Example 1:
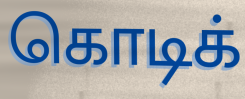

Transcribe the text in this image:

கொடிக்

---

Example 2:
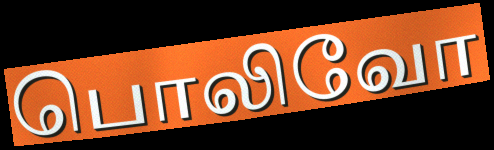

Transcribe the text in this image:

பொலிவோ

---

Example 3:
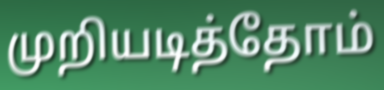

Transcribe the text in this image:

முறியடித்தோம்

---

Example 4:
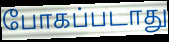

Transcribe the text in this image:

போகப்படாது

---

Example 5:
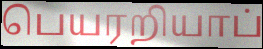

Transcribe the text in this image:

பெயரறியாப்